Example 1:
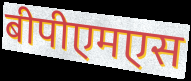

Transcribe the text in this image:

बीपीएमएस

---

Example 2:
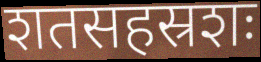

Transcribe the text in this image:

शतसहस्रशः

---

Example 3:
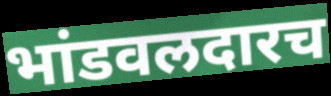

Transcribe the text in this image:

भांडवलदारच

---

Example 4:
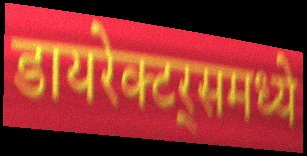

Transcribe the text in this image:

डायरेक्टर्समध्ये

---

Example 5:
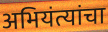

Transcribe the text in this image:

अभियंत्यांचा